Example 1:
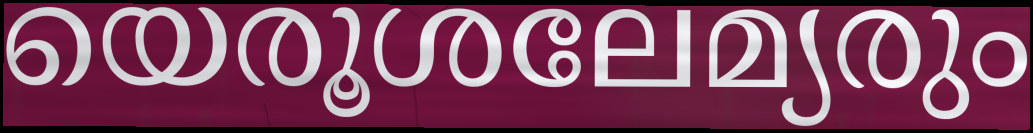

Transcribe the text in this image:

യെരൂശലേമ്യരും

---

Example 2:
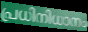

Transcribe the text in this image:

പ്രധിനിധാനം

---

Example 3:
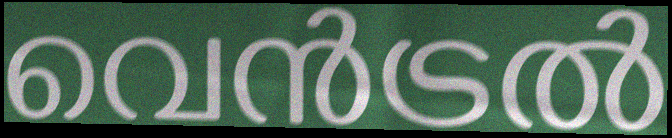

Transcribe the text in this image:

വെൻട്രൽ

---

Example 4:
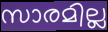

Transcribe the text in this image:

സാരമില്ല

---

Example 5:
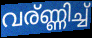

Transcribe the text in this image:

വര്ണ്ണിച്ച്